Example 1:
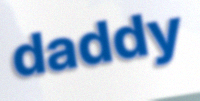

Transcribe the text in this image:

daddy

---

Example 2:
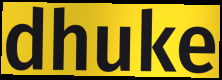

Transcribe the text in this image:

dhuke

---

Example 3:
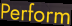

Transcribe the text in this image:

Perform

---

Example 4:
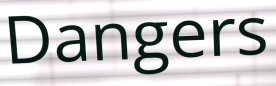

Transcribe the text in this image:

Dangers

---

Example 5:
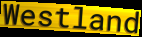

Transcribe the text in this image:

Westland